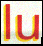
lu